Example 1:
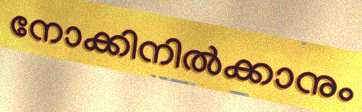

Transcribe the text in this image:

നോക്കിനിൽക്കാനും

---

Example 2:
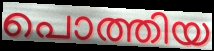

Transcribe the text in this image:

പൊത്തിയ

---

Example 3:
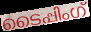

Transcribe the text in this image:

ടൈപ്പിംഗ്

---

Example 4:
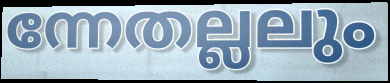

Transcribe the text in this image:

ന്നേതല്ലലും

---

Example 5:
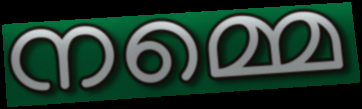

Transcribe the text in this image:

നമ്മെ